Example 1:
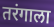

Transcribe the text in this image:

तरंगाला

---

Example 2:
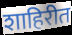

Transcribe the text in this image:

शाहिरीत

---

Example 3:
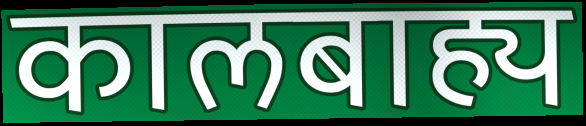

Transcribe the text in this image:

कालबाह्य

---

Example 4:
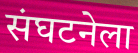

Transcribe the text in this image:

संघटनेला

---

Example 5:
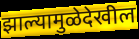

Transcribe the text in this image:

झाल्यामुळेदेखील